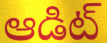
ఆడిట్